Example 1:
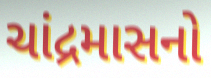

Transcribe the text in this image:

ચાંદ્રમાસનો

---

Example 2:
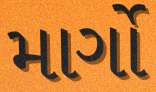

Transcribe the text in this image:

માર્ગો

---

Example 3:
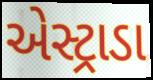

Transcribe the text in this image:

એસ્ટ્રાડા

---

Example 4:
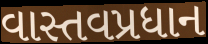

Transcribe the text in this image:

વાસ્તવપ્રધાન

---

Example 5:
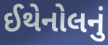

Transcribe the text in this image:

ઈથેનોલનું